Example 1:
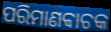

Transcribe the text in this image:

ପରିମାଣଵାଚକ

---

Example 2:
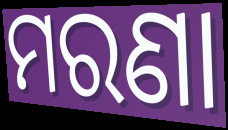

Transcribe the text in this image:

ମରଣା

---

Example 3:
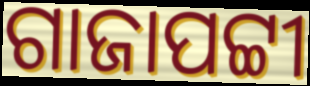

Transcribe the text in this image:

ଗାଜାପଟ୍ଟୀ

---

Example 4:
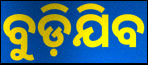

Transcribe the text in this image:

ବୁଡ଼ିଯିବ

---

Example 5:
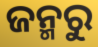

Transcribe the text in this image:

ଜନ୍ମରୁ